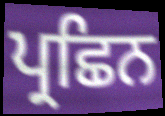
ਪ੍ਰਛਿਨ